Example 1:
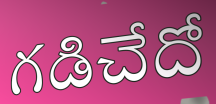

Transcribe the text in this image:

గడిచేదో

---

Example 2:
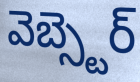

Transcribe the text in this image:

వెబ్స్టెర్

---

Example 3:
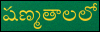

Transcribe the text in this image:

షణ్మతాలలో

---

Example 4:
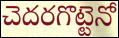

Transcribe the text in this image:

చెదరగొట్టెనో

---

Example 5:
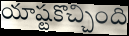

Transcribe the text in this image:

యాష్టకొచ్చింది